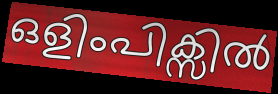
ഒളിംപിക്സിൽ